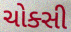
ચોક્સી